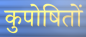
कुपोषितों